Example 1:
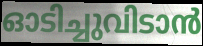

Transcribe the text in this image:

ഓടിച്ചുവിടാൻ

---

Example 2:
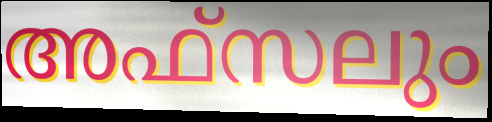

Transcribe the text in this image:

അഫ്സലും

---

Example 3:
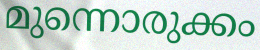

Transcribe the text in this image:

മുന്നൊരുക്കം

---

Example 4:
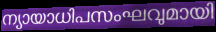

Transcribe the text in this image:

ന്യായാധിപസംഘവുമായി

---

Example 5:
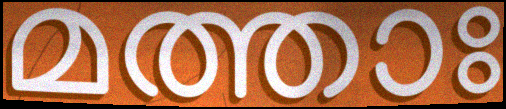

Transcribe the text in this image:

മത്താഃ